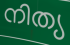
നിത്യ